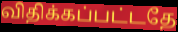
விதிக்கப்பட்டதே